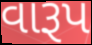
વારૂપ